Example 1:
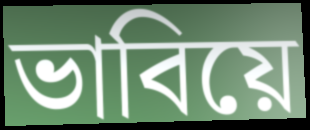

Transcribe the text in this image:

ভাবিয়ে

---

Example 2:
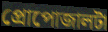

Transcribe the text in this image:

প্রোপোজালটা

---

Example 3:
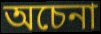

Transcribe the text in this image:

অচেনা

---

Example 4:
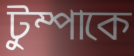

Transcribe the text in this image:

টুম্পাকে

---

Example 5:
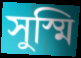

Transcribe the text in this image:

সুস্মি